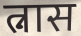
त्नास